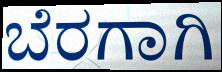
ಬೆರಗಾಗಿ